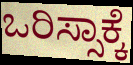
ಒರಿಸ್ಸಾಕ್ಕೆ